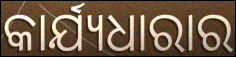
କାର୍ଯ୍ୟଧାରାର